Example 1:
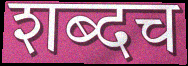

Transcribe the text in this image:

शब्दच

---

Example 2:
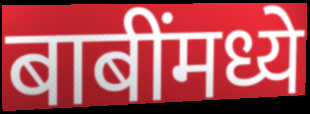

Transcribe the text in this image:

बाबींमध्ये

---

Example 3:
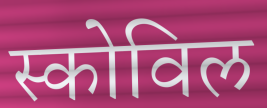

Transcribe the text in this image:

स्कोविल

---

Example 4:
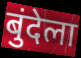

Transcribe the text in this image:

बुंदेला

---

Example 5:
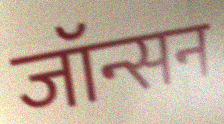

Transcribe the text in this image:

जॉन्सन